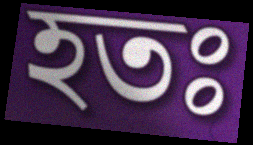
হতঃ